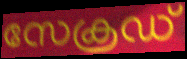
സേക്രഡ്